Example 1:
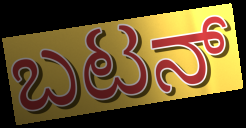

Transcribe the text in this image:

ಬಟನ್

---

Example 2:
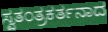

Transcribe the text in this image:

ಸ್ವತಂತ್ರಕರ್ತನಾದ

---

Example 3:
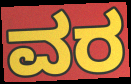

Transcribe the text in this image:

ವರ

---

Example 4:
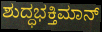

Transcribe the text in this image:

ಶುದ್ಧಭಕ್ತಿಮಾನ್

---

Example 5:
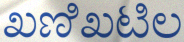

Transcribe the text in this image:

ಖಣಿಖಟಿಲ